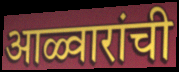
आळ्वारांची